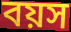
বয়স